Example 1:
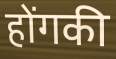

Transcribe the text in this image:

होंगकी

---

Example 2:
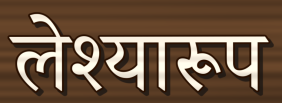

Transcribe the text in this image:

लेश्यारूप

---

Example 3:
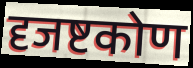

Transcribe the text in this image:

दृजष्टकोण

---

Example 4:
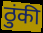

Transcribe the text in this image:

ठुंकी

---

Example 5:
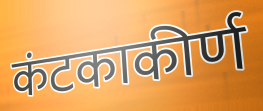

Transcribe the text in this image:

कंटकाकीर्ण